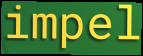
impel